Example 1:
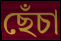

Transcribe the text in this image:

ছেঁচা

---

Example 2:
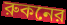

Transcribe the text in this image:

রুকনের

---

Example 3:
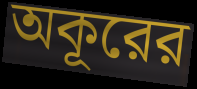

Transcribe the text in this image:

অকূরের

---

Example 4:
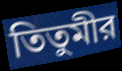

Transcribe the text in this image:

তিতুমীর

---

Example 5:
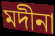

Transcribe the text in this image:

মদীনা